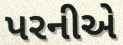
પરનીએ